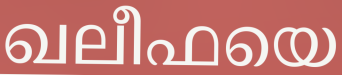
ഖലീഫയെ